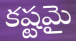
కష్టమై